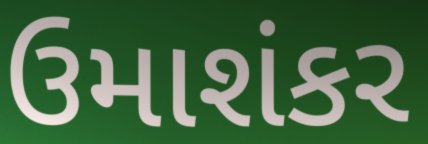
ઉમાશંકર